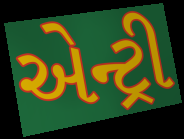
એન્ટ્રી